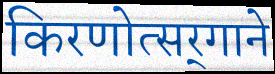
किरणोत्सर्गाने